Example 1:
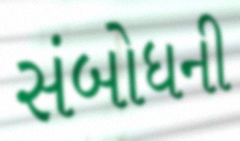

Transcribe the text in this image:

સંબોધની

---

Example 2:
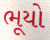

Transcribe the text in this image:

ભૂયો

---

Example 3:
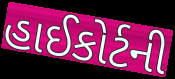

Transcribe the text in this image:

હાઈકોર્ટની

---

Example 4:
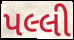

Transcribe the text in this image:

પલ્લી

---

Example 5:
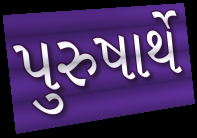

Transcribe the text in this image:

પુરુષાર્થે